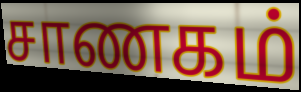
சாணகம்